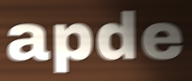
apde